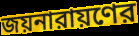
জয়নারায়ণের